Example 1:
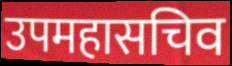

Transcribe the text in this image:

उपमहासचिव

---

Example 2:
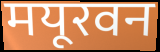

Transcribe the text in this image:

मयूरवन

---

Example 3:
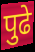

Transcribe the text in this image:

पुढे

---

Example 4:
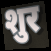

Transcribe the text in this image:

शुर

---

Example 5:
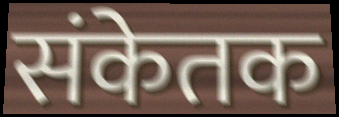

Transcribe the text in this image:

संकेतक